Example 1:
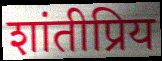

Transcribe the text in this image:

शांतीप्रिय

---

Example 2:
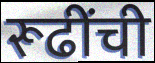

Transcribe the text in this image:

रूढींची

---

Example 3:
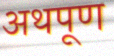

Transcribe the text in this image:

अथपूण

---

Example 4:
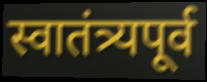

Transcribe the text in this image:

स्वातंत्र्यपूर्व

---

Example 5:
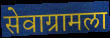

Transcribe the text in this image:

सेवाग्रामला